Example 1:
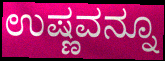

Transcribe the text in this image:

ಉಷ್ಣವನ್ನೂ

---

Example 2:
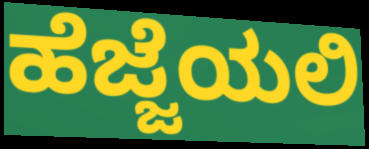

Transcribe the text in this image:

ಹೆಜ್ಜೆಯಲಿ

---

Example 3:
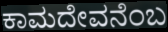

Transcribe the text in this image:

ಕಾಮದೇವನೆಂಬ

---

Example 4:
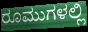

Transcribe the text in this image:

ರೂಮುಗಳಲ್ಲಿ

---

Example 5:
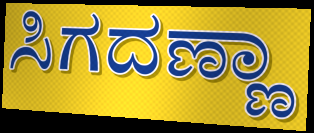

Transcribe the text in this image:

ಸಿಗದಣ್ಣಾ